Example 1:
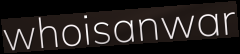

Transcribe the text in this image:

whoisanwar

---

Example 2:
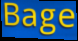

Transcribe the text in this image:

Bage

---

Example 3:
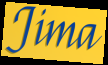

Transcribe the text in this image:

Jima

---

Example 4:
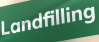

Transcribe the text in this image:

Landfilling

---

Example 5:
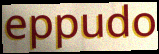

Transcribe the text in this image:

eppudo